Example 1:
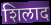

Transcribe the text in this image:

शिलाद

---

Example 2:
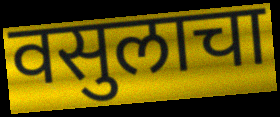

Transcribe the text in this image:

वसुलाचा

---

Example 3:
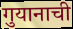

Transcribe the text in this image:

गुयानाची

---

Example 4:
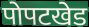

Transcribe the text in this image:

पोपटखेड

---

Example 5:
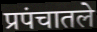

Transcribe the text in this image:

प्रपंचातले